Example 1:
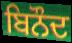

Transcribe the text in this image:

ਬਿਨੌਦ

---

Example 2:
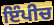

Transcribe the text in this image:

ਇੰਪੀਚ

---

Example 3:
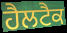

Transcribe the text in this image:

ਹੈਲਟੈਕ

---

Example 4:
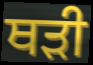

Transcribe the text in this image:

ਥੜੀ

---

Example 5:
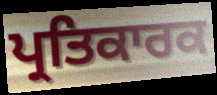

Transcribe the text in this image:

ਪ੍ਰਤਿਕਾਰਕ